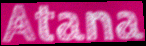
Atana